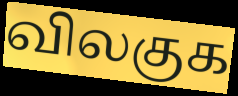
விலகுக